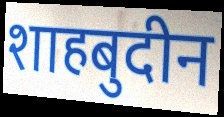
शाहबुदीन